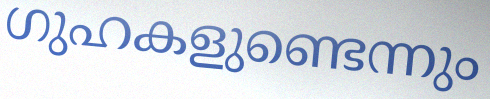
ഗുഹകളുണ്ടെന്നും